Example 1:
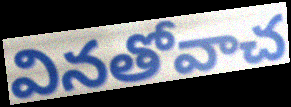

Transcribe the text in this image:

వినతోవాచ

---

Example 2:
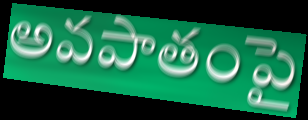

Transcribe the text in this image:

అవపాతంపై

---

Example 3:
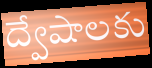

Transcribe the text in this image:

ద్వేషాలకు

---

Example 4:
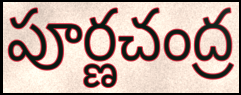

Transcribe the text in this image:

పూర్ణచంద్ర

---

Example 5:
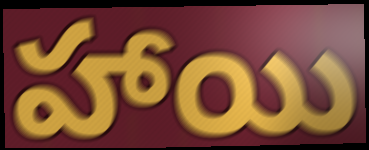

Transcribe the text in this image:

హాయి